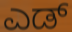
ಎಡ್